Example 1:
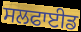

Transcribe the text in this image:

ਸਲਫਾਈਡ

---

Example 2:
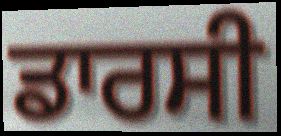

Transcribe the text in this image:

ਡਾਰਸੀ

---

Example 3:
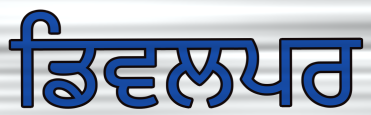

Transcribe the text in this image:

ਡਿਵਲਪਰ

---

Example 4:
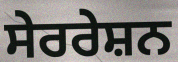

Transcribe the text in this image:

ਸੇਰਰੇਸ਼ਨ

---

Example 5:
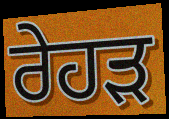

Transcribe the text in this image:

ਰੇਹੜ